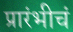
प्रारंभीचं